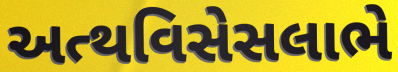
અત્થવિસેસલાભે